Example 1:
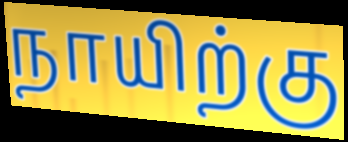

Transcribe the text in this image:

நாயிற்கு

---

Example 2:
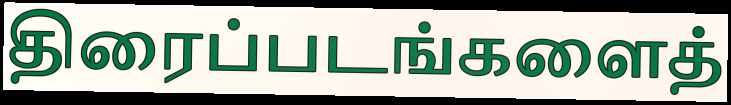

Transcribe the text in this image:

திரைப்படங்களைத்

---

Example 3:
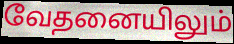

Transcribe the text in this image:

வேதனையிலும்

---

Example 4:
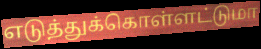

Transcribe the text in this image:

எடுத்துக்கொள்ளட்டுமா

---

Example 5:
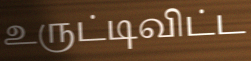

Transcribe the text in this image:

உருட்டிவிட்ட